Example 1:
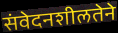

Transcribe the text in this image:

संवेदनशीलतेने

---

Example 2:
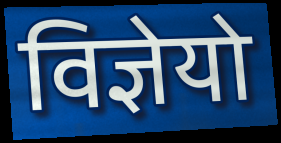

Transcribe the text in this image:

विज्ञेयो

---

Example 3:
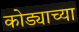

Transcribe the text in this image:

कोड्याच्या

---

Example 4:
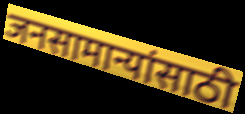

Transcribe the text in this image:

जनसामान्यांसाठी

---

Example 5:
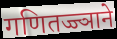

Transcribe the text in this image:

गणितज्ज्ञाने